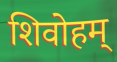
शिवोहम्